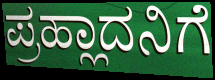
ಪ್ರಹ್ಲಾದನಿಗೆ